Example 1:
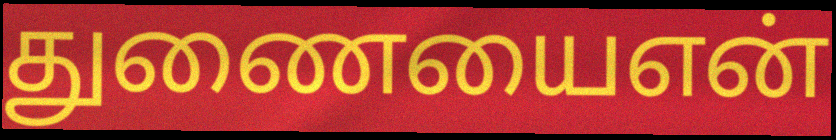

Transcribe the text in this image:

துணையைஎன்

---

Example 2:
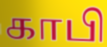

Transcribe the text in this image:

காபி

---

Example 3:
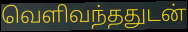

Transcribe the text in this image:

வெளிவந்ததுடன்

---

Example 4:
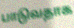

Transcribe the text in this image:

பாடுவதாக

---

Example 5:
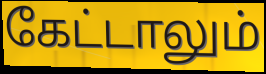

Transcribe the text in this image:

கேட்டாலும்